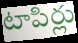
టాపిర్లు